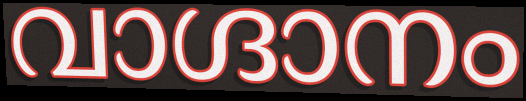
വാഗ്ദാനം